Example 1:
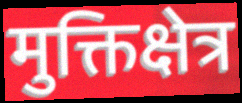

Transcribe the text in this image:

मुक्तिक्षेत्र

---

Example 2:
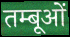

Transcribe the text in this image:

तम्बूओं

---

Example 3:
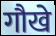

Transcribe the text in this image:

गौखे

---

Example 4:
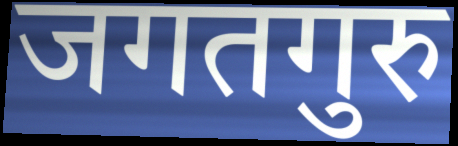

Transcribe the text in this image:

जगतगुरु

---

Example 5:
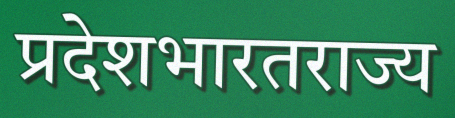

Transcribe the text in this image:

प्रदेशभारतराज्य